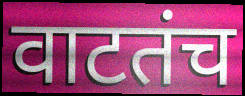
वाटतंच